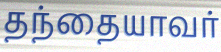
தந்தையாவர்